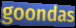
goondas